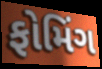
ફોમિંગ